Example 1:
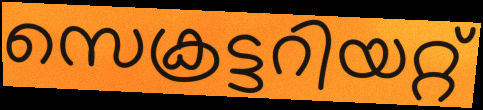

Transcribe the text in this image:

സെക്രട്ടറിയറ്റ്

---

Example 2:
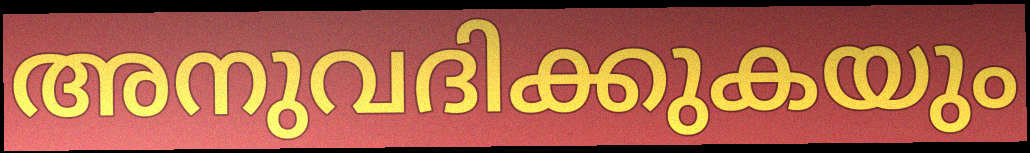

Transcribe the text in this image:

അനുവദിക്കുകയും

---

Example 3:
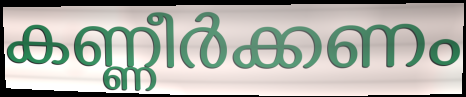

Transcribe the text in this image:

കണ്ണീർക്കണം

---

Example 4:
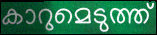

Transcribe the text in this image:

കാറുമെടുത്ത്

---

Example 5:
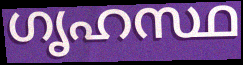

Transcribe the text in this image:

ഗൃഹസ്ഥ